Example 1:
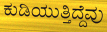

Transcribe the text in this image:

ಕುಡಿಯುತ್ತಿದ್ದೆವು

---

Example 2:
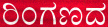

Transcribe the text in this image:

ರಿಂಗಣದ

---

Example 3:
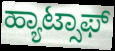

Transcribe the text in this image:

ಹ್ಯಾಟ್ಸಾಫ್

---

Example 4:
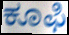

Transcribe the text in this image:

ಕೂಫಿ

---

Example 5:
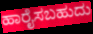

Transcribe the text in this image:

ಹಾರೈಸಬಹುದು